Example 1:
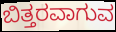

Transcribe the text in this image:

ಬಿತ್ತರವಾಗುವ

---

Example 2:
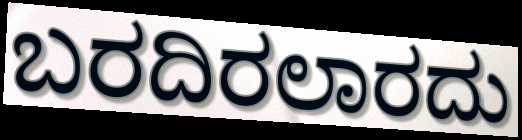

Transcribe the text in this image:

ಬರದಿರಲಾರದು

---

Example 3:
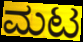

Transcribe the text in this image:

ಮಟ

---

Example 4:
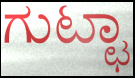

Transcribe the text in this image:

ಗುಟ್ಟಾ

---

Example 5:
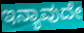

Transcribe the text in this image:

ಇನ್ಯಾವುದೇ